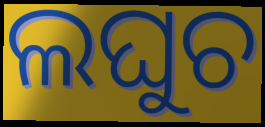
ଲଘୁଚ